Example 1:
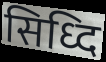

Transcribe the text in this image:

सिध्दि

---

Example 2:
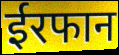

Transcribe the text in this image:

ईरफान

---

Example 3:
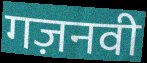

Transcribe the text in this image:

गज़नवी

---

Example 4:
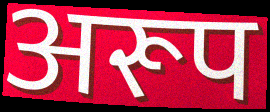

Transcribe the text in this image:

अरूप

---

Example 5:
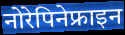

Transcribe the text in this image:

नोरेपिनेफ्राइन